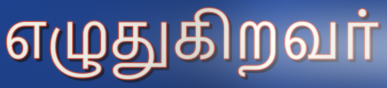
எழுதுகிறவர்